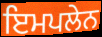
ਇਮਪਲੇਨ